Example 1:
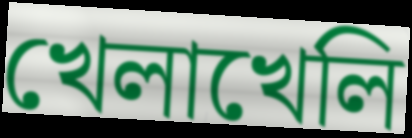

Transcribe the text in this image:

খেলাখেলি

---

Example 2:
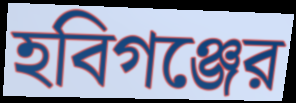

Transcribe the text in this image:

হবিগঞ্জের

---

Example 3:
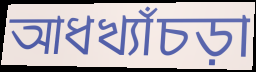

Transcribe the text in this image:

আধখ্যাঁচড়া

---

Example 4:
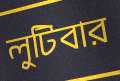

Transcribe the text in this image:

লুটিবার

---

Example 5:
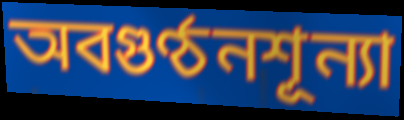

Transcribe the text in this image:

অবগুণ্ঠনশূন্যা